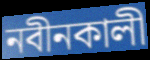
নবীনকালী